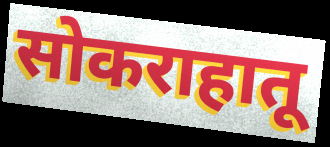
सोकराहातू